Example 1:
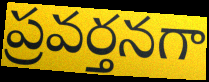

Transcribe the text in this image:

ప్రవర్తనగా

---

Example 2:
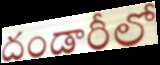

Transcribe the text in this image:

దండారీలో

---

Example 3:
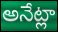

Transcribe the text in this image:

అనేట్లా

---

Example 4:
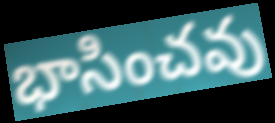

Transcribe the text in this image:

భాసించవు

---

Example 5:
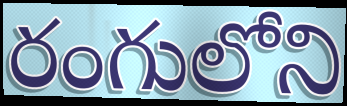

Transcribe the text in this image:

రంగులోని